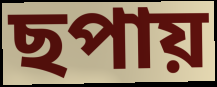
ছপায়